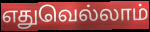
எதுவெல்லாம்